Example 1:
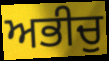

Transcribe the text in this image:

ਅਭੀਚੁ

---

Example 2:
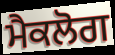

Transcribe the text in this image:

ਮੈਕਲੋਗ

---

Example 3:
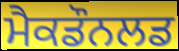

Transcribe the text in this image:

ਮੈਕਡੌਨਲਡ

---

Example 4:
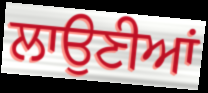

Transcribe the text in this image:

ਲਾਉਣੀਆਂ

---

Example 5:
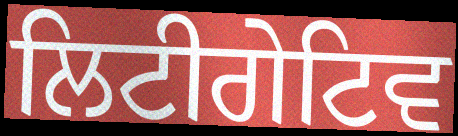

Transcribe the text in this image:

ਲਿਟੀਗੇਟਿਵ